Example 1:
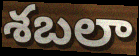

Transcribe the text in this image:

శబలా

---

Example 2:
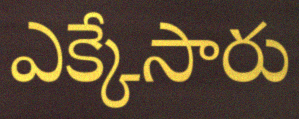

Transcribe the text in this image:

ఎక్కేసారు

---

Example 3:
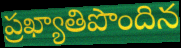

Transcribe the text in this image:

ప్రఖ్యాతిపొందిన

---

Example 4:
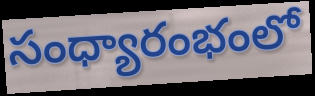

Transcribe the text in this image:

సంధ్యారంభంలో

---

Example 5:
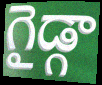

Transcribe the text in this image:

గైడ్గా